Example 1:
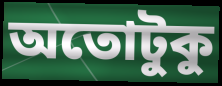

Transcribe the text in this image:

অতোটুকু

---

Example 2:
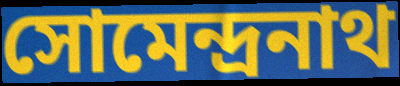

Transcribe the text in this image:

সোমেন্দ্রনাথ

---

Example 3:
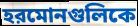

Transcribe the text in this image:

হরমোনগুলিকে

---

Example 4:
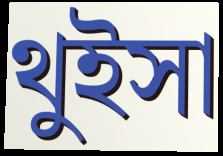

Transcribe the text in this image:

থুইসা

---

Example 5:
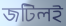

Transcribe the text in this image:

জটিলই